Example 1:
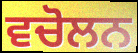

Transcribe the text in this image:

ਵਚੋਲਨ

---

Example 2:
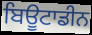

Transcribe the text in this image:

ਬਿਊਟਾਡੀਨ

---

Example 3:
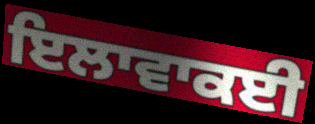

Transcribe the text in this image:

ਇਲਾਵਾਕਈ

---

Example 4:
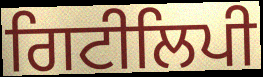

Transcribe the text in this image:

ਗਿਟੀਲਿਪੀ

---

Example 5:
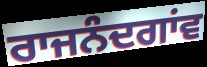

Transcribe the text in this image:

ਰਾਜਨੰਦਗਾਂਵ